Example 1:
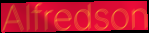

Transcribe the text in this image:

Alfredson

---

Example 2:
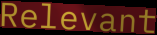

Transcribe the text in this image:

Relevant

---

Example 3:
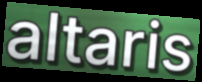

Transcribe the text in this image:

altaris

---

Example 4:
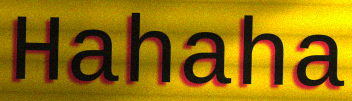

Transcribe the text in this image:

Hahaha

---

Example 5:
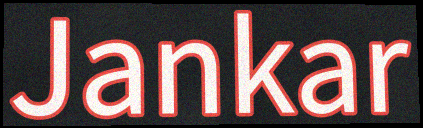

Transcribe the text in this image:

Jankar